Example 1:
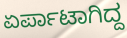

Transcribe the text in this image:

ಏರ್ಪಾಟಾಗಿದ್ದ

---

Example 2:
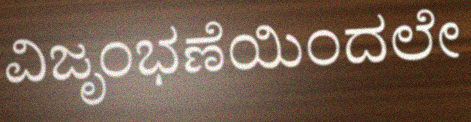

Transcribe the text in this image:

ವಿಜೃಂಭಣೆಯಿಂದಲೇ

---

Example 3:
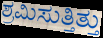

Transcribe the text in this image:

ಶ್ರಮಿಸುತ್ತಿತ್ತು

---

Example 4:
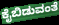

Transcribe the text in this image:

ಕೈಬಿಡುವಂತೆ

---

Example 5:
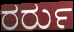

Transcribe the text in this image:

ರರ್ರು